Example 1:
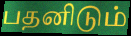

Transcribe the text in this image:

பதனிடும்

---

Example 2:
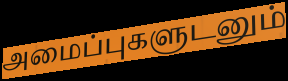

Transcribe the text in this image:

அமைப்புகளுடனும்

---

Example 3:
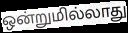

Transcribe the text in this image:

ஒன்றுமில்லாது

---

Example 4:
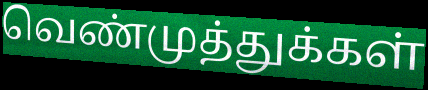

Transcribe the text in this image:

வெண்முத்துக்கள்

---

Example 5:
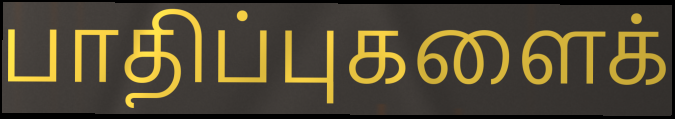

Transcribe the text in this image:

பாதிப்புகளைக்